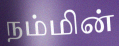
நம்மின்